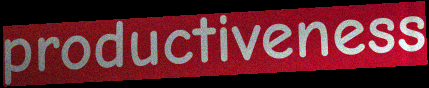
productiveness